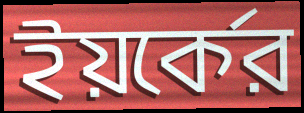
ইয়র্কের